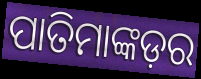
ପାତିମାଙ୍କଡ଼ର